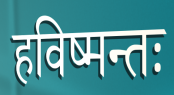
हविष्मन्तः